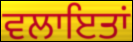
ਵਲਾਇਤਾਂ